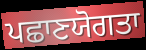
ਪਛਾਣਯੋਗਤਾ